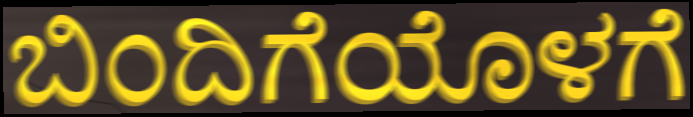
ಬಿಂದಿಗೆಯೊಳಗೆ